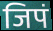
जिपं